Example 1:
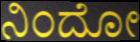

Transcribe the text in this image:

ನಿಂದೋ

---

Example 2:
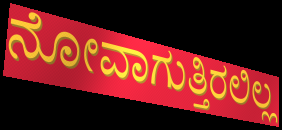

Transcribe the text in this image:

ನೋವಾಗುತ್ತಿರಲಿಲ್ಲ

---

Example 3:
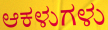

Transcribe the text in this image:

ಆಕಳುಗಳು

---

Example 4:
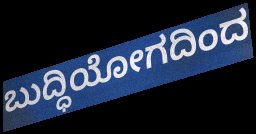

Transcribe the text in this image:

ಬುದ್ಧಿಯೋಗದಿಂದ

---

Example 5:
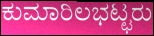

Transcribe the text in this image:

ಕುಮಾರಿಲಭಟ್ಟರು